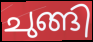
ചുങ്ങി